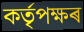
কৰ্তৃপক্ষৰ